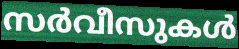
സർവീസുകൾ